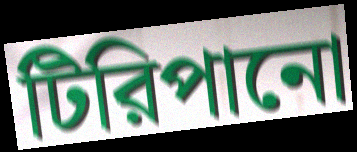
টিরিপানো